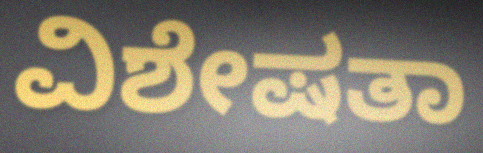
ವಿಶೇಷತಾ